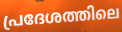
പ്രദേശത്തിലെ